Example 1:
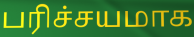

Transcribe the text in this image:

பரிச்சயமாக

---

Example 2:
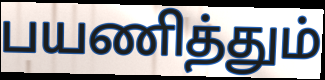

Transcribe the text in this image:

பயணித்தும்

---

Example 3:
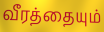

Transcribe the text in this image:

வீரத்தையும்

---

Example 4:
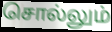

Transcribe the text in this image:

சொல்லும்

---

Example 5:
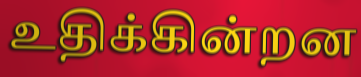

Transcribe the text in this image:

உதிக்கின்றன